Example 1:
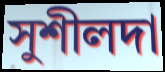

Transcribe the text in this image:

সুশীলদা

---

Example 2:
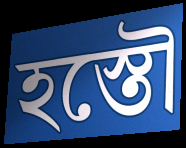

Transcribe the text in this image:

হস্তৌ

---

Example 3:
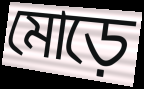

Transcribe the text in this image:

মোড়ে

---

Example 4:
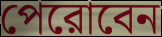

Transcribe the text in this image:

পেরোবেন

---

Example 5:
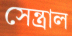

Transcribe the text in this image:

সেন্ত্রাল